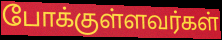
போக்குள்ளவர்கள்